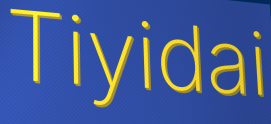
Tiyidai